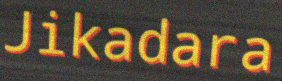
Jikadara